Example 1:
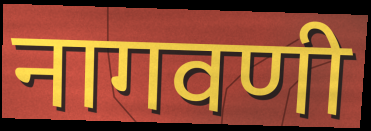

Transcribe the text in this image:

नागवणी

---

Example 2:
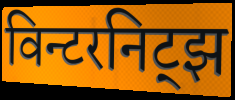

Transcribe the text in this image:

विन्टरनिट्झ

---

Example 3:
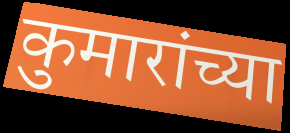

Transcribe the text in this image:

कुमारांच्या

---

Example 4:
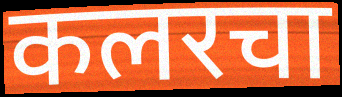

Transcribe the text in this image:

कलरचा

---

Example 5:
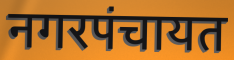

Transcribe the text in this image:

नगरपंचायत